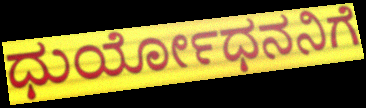
ಧುರ್ಯೋಧನನಿಗೆ